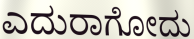
ಎದುರಾಗೋದು